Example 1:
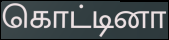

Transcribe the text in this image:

கொட்டினா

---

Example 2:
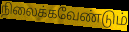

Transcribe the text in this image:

நிலைக்கவேண்டும்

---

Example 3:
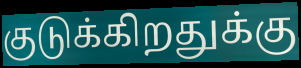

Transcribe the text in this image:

குடுக்கிறதுக்கு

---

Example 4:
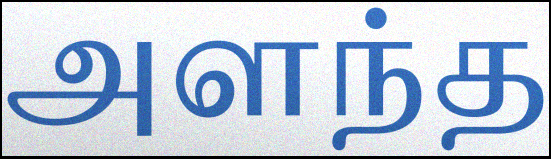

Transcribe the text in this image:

அளந்த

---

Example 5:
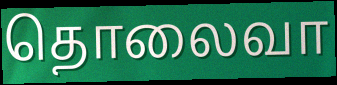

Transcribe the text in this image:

தொலைவா